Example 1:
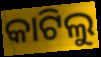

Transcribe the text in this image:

କାଟିଲୁ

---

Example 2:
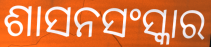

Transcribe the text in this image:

ଶାସନସଂସ୍କାର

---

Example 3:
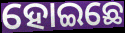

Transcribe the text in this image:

ହୋଇଛେ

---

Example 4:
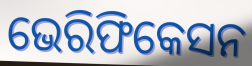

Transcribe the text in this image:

ଭେରିଫିକେସନ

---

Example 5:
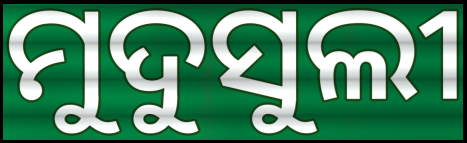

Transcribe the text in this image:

ମୁଦୁସୁଲୀ